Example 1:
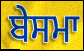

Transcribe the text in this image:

ਬੇਸਮਾ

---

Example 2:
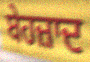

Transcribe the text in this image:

ਬੇਹਜ਼ਾਦ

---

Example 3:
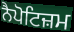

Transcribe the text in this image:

ਨੈਪੋਟਿਜ਼ਮ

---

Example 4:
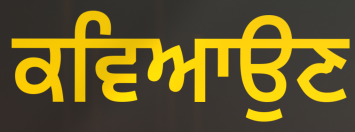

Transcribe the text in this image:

ਕਵਿਆਉਣ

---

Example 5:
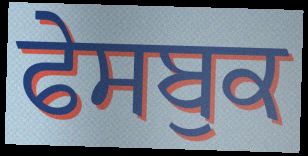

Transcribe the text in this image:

ਫੇਸਬੁਕ